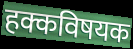
हक्कविषयक